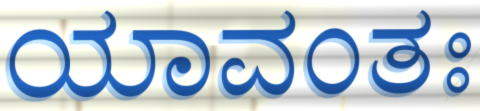
ಯಾವಂತಃ